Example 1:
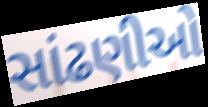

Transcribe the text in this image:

સાંઢણીઓ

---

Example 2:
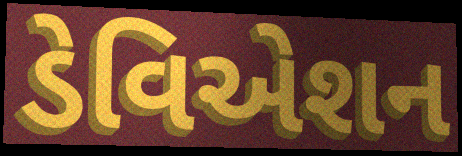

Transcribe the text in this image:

ડેવિએશન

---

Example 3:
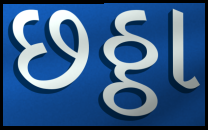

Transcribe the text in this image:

છઠ્ઠા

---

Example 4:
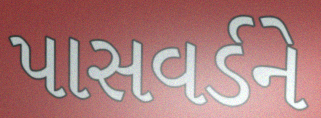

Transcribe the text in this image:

પાસવર્ડને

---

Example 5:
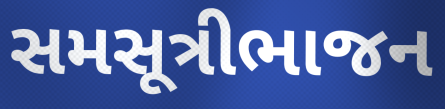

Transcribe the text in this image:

સમસૂત્રીભાજન